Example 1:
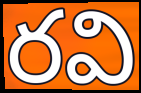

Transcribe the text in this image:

రవి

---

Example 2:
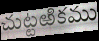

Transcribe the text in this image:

చుట్టఱికము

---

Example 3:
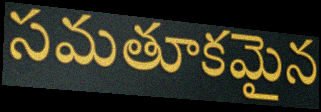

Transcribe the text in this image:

సమతూకమైన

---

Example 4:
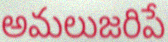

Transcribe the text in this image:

అమలుజరిపే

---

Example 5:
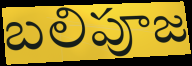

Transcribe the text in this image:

బలిపూజ